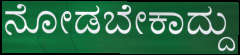
ನೋಡಬೇಕಾದ್ದು